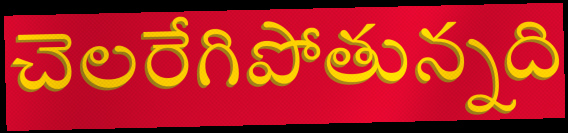
చెలరేగిపోతున్నది